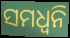
ସମଧ୍ୱନି